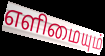
எளிமையும்